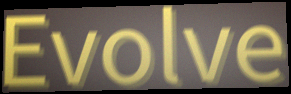
Evolve